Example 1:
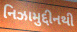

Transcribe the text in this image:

નિઝામુદ્દીનથી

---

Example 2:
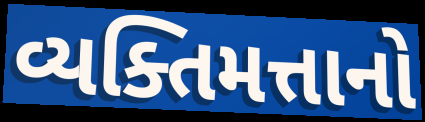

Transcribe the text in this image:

વ્યક્તિમત્તાનો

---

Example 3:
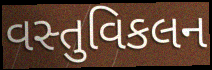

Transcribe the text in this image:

વસ્તુવિકલન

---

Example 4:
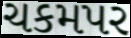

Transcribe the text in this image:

ચકમપર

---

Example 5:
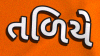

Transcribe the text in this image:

તળિયે